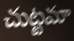
చుట్టమా